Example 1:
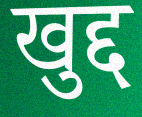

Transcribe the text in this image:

खुद्द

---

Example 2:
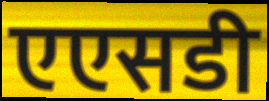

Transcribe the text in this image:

एएसडी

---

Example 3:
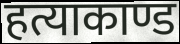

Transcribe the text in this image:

हत्याकाण्ड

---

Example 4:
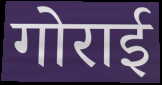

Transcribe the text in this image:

गोराई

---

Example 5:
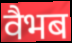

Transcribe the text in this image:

वैभब